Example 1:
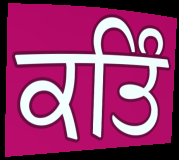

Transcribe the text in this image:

ਕਤਿੰ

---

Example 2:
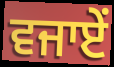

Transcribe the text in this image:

ਵਜਾਏਂ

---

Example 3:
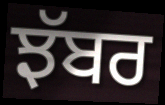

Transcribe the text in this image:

ਝੱਬਰ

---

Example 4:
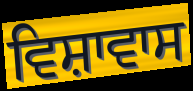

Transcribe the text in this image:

ਵਿਸ਼ਾਵਾਸ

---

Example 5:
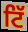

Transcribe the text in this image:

ਟਿੱ